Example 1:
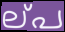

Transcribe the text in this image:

ല്‌പ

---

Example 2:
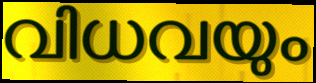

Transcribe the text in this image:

വിധവയും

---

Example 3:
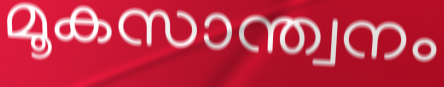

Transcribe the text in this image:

മൂകസാന്ത്വനം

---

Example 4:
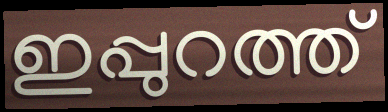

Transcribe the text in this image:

ഇപ്പുറത്ത്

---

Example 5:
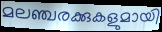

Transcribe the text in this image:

മലഞ്ചരക്കുകളുമായി